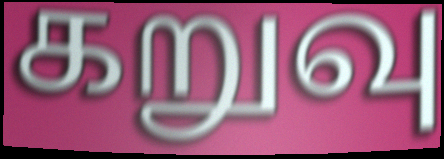
கறுவு